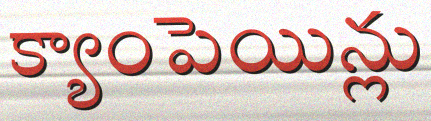
క్యాంపెయిన్లు